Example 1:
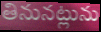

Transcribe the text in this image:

తినునట్లును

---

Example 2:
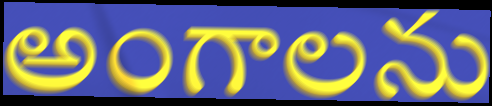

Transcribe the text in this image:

అంగాలను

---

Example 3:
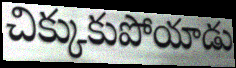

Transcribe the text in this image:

చిక్కుకుపోయాడు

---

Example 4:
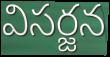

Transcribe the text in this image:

విసర్జన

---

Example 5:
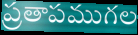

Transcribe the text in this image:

ప్రతాపముగల